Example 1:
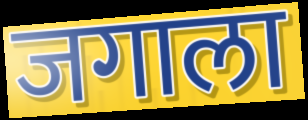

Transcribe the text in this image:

जगाला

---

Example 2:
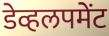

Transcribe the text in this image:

डेव्हलपमेंट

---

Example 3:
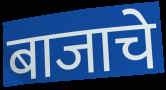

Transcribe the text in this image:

बाजाचे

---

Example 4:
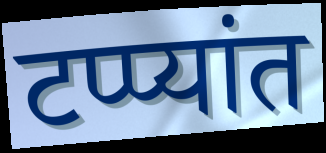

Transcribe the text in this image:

टप्प्यांत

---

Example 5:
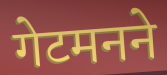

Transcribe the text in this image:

गेटमनने